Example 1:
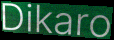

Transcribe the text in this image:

Dikaro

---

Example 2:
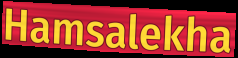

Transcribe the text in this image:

Hamsalekha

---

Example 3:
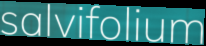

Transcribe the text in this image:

salvifolium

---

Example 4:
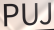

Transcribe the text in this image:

PUJ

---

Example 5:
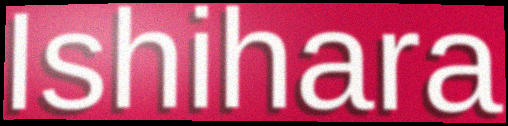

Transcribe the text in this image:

Ishihara